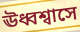
ঊধ্বশ্বাসে